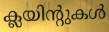
ക്ലയിന്റുകൾ